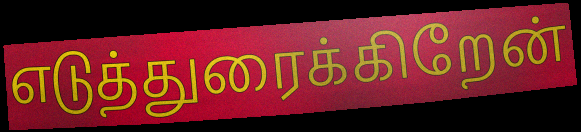
எடுத்துரைக்கிறேன்